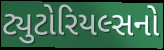
ટ્યુટોરિયલ્સનો